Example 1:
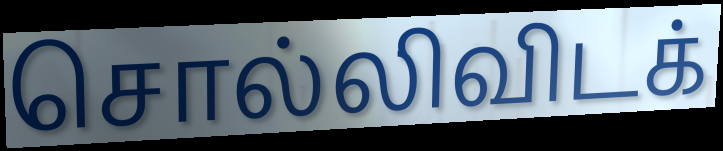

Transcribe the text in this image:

சொல்லிவிடக்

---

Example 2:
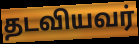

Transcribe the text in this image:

தடவியவர்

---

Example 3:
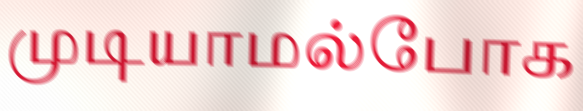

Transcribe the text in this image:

முடியாமல்போக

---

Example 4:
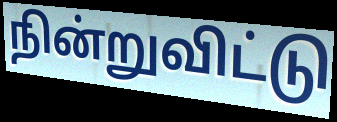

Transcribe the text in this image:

நின்றுவிட்டு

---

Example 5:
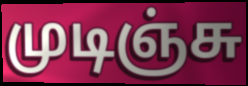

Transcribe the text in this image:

முடிஞ்சு